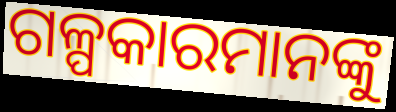
ଗଳ୍ପକାରମାନଙ୍କୁ